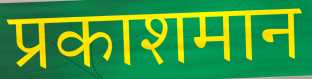
प्रकाशमान